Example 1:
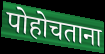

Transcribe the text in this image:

पोहोचताना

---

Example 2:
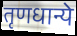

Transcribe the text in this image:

तृणधान्ये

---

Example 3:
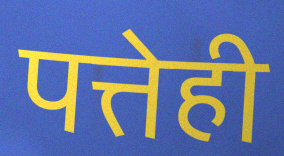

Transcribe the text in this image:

पत्तेही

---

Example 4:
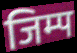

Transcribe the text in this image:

जिम्प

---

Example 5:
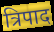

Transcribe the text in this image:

त्रिपाद